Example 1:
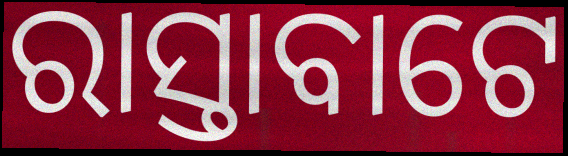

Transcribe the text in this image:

ରାସ୍ତାବାଟେ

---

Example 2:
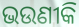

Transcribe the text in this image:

ଭଉଣୀକି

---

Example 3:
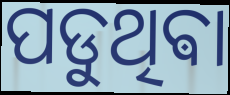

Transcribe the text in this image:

ପଡୁଥିଵା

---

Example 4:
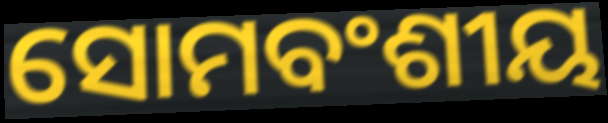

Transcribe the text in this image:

ସୋମବଂଶୀୟ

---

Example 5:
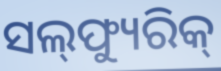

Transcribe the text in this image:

ସଲ୍‌ଫ୍ୟୁରିକ୍